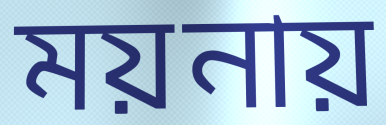
ময়নায়